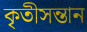
কৃতীসন্তান